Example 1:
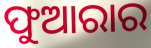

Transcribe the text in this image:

ଫୁଆରାର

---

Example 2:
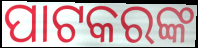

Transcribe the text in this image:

ପାଟକରଙ୍କ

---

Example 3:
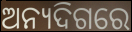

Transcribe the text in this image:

ଅନ୍ୟଦିଗରେ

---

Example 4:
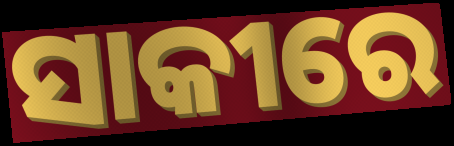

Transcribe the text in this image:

ସାକୀରେ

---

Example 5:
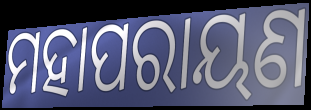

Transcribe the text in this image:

ମହାପରାୟଣ